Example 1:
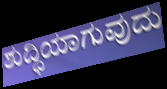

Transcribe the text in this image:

ಶುದ್ಧಿಯಾಗುವುದು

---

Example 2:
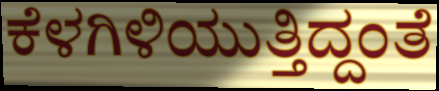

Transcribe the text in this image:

ಕೆಳಗಿಳಿಯುತ್ತಿದ್ದಂತೆ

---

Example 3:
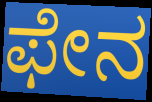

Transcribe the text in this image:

ಫೇನ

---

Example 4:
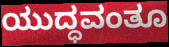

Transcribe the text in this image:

ಯುದ್ಧವಂತೂ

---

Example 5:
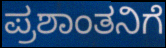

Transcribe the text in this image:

ಪ್ರಶಾಂತನಿಗೆ